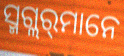
ସ୍ମଗ୍ଲର୍‌ମାନେ